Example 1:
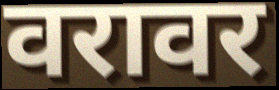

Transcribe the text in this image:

वरावर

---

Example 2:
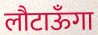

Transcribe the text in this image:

लौटाऊँगा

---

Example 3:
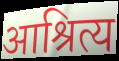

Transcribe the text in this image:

आश्रित्य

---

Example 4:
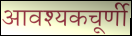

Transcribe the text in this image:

आवश्यकचूर्णी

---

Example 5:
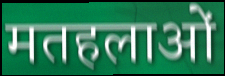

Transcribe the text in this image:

मतहलाओं